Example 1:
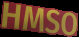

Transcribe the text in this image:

HMSO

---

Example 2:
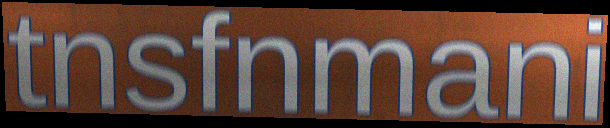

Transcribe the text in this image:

tnsfnmani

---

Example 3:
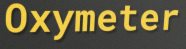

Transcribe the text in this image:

Oxymeter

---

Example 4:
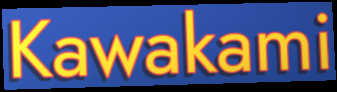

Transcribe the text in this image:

Kawakami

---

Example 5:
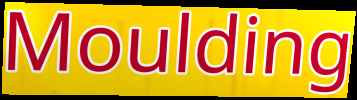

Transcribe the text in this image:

Moulding